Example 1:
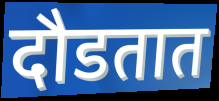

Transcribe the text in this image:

दौडतात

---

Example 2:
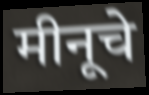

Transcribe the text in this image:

मीनूचे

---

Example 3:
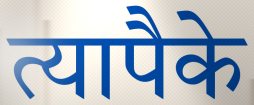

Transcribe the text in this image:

त्यापैके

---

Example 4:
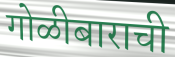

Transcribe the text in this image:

गोळीबाराची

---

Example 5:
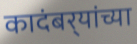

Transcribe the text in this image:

कादंबर्‍यांच्या